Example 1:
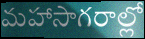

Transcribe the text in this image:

మహాసాగరాల్లో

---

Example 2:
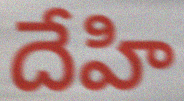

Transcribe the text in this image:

దేహి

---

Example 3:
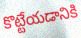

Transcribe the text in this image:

కొట్టేయడానికి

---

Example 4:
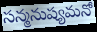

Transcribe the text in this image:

సన్మనుష్యమనో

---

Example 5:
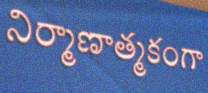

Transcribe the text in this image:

నిర్మాణాత్మకంగా